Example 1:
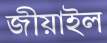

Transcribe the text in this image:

জীয়াইল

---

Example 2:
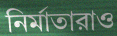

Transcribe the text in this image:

নির্মাতারাও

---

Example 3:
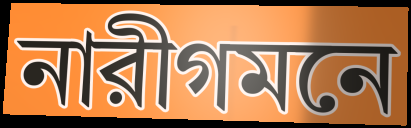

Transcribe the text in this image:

নারীগমনে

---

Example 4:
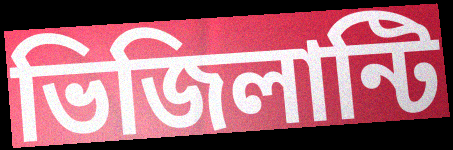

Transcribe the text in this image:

ভিজিলান্টি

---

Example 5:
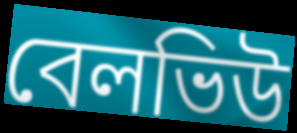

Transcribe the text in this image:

বেলভিউ